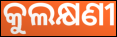
କୁଲକ୍ଷଣୀ